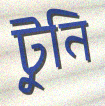
টুনি